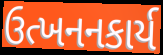
ઉત્ખનનકાર્ય